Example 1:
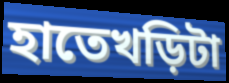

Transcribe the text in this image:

হাতেখড়িটা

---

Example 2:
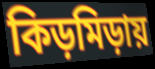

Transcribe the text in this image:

কিড়মিড়ায়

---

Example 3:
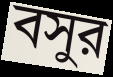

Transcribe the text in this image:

বসুর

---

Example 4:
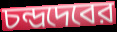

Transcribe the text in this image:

চন্দ্রদেবের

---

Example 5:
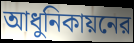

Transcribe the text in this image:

আধুনিকায়নের